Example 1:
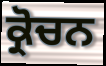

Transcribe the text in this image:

ਕ੍ਰੋਚਨ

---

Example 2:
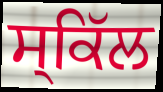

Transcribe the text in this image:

ਸ੍ਕਿੱਲ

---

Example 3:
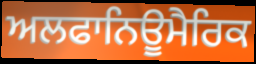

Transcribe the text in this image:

ਅਲਫਾਨਿਊਮੈਰਿਕ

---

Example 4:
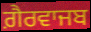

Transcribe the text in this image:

ਗ਼ੈਰਵਾਜਬ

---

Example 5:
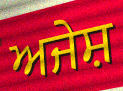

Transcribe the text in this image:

ਅਜੇਸ਼